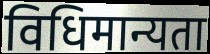
विधिमान्यता